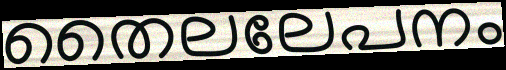
തൈലലേപനം